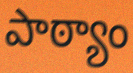
పాఠ్యాం